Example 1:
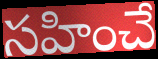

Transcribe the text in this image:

సహించే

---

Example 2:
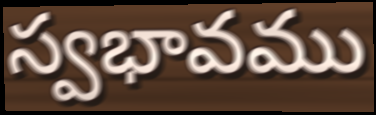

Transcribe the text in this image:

స్వభావము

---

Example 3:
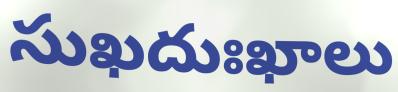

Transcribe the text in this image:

సుఖదుఃఖాలు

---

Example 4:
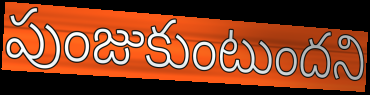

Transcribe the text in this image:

పుంజుకుంటుందని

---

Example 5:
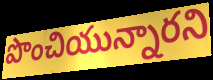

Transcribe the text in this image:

పొంచియున్నారని